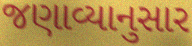
જણાવ્યાનુસાર